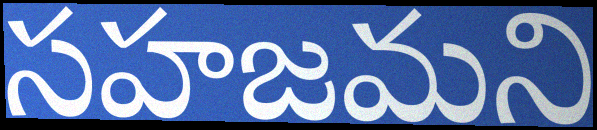
సహజమని